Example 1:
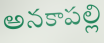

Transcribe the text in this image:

అనకాపల్లి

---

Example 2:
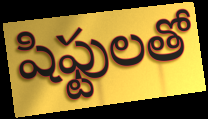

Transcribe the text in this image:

షిఫ్టులతో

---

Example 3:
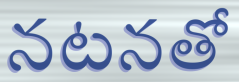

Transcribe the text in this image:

నటనతో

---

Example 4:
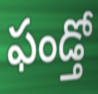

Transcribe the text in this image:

ఫండ్తో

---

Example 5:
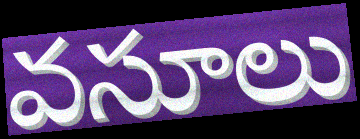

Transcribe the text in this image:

వసూలు